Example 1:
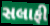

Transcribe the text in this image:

સલાફી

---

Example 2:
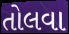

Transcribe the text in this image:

તોલવા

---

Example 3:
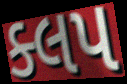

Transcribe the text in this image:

ક્લપ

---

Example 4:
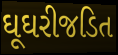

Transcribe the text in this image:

ઘૂઘરીજડિત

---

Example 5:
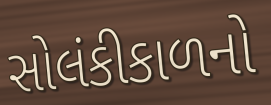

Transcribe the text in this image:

સોલંકીકાળનો